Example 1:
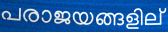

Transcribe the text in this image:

പരാജയങ്ങളില്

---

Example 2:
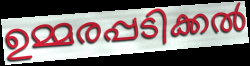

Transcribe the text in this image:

ഉമ്മരപ്പടിക്കൽ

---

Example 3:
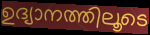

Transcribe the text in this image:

ഉദ്യാനത്തിലൂടെ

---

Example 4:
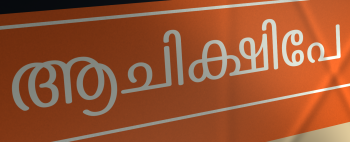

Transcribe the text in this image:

ആചിക്ഷിപേ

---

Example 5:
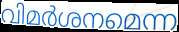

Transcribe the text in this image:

വിമർശനമെന്ന